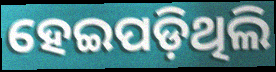
ହେଇପଡ଼ିଥିଲି